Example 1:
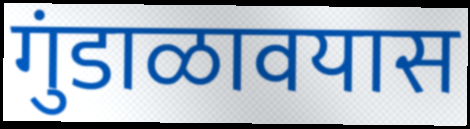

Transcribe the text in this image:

गुंडाळावयास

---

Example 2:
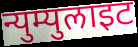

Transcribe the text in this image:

न्युम्युलाइट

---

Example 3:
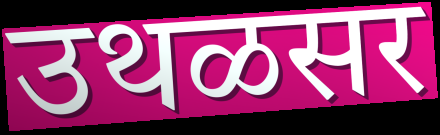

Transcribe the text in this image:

उथळसर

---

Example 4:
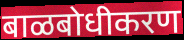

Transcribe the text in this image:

बाळबोधीकरण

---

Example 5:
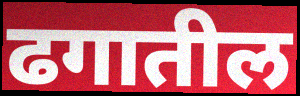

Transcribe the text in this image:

ढगातील